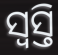
ସ୍ଵସ୍ତି